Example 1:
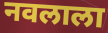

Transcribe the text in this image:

नवलाला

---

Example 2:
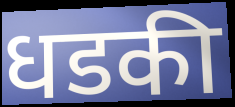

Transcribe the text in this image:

धडकी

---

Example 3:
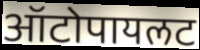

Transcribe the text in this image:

ऑटोपायलट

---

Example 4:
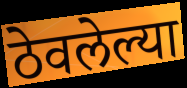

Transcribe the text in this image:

ठेवलेल्या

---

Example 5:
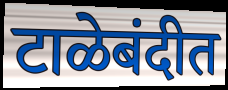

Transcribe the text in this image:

टाळेबंदीत